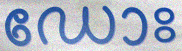
ഡോഃ